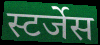
स्टर्जेस